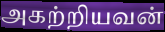
அகற்றியவன்